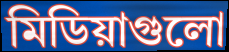
মিডিয়াগুলো